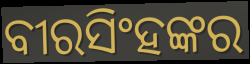
ବୀରସିଂହଙ୍କର